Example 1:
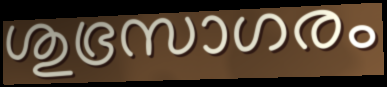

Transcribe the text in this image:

ശുഭ്രസാഗരം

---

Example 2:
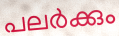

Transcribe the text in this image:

പലർക്കും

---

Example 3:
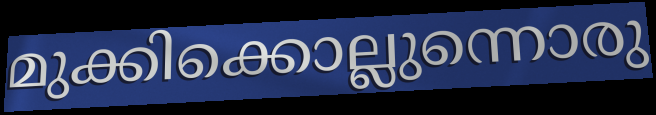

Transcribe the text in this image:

മുക്കിക്കൊല്ലുന്നൊരു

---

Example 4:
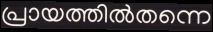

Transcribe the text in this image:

പ്രായത്തിൽതന്നെ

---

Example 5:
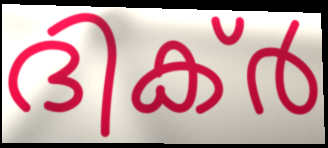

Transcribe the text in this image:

ദിക്ർ